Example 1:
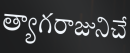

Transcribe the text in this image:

త్యాగరాజునిచే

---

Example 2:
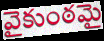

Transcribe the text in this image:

వైకుంఠమై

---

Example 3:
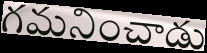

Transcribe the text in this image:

గమనించాడు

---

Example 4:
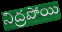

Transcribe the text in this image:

నిద్రపోయి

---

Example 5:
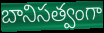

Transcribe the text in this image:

బానిసత్వంగా